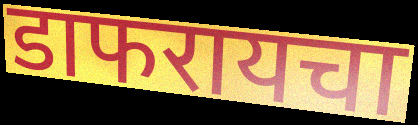
डाफरायचा